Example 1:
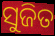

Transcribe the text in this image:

ସୁଜିତ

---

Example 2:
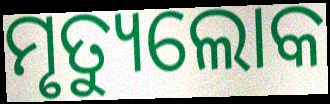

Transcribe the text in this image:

ମୃତ୍ୟୁଲୋକ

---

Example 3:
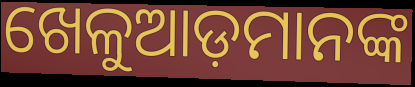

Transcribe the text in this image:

ଖେଳୁଆଡ଼ମାନଙ୍କ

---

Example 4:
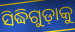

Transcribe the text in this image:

ସିଦ୍ଧିଗୁଡ଼ାକୁ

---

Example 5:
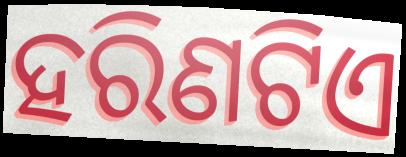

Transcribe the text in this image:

ହରିଣଟିଏ